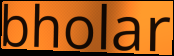
bholar